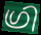
ഗ്രി